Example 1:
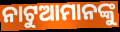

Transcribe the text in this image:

ନାଟୁଆମାନଙ୍କୁ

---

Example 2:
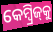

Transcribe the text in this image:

କେମ୍ୱ୍ରିଜ୍‌କୁ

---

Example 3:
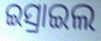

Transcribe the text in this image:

ଇସ୍ରାଇଲ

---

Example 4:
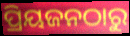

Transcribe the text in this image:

ପ୍ରିୟଜନଠାରୁ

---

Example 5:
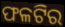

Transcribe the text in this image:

ଫଳଟିର